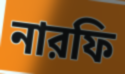
নারফি